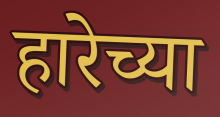
हारेच्या